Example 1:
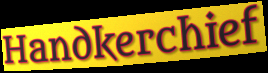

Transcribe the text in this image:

Handkerchief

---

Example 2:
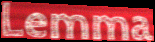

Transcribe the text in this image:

Lemma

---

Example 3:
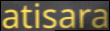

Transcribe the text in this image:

atisara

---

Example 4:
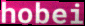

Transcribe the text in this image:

hobei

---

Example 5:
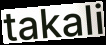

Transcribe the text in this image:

takali